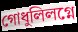
গোধুলিলগ্নে